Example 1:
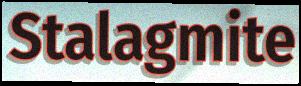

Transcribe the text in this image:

Stalagmite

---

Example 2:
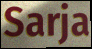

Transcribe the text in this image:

Sarja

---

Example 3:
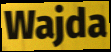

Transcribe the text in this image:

Wajda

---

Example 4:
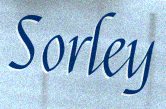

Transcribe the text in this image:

Sorley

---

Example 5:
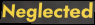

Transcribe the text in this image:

Neglected